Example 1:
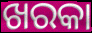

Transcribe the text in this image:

ଖରକା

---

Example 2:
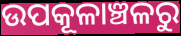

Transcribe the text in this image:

ଉପକୂଳାଞ୍ଚଳରୁ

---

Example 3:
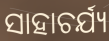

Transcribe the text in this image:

ସାହାଚର୍ଯ୍ୟ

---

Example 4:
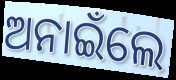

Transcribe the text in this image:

ଅନାଇଁଲେ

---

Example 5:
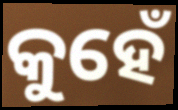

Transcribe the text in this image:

କୁହେଁ